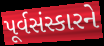
પૂર્વસંસ્કારને